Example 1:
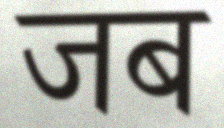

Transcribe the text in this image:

जब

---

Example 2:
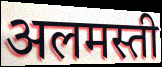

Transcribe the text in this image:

अलमस्ती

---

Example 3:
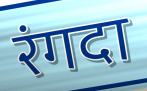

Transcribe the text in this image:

रंगदा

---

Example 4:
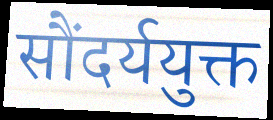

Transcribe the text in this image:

सौंदर्ययुक्त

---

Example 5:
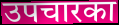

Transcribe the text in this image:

उपचारका